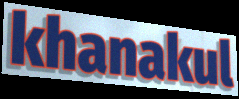
khanakul